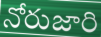
నోరుజారి